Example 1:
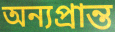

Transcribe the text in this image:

অন্যপ্রান্ত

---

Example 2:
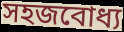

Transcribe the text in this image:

সহজবোধ্য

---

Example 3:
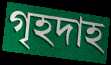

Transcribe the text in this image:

গৃহদাহ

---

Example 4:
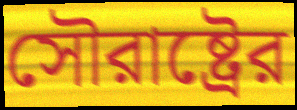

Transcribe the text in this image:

সৌরাষ্ট্রের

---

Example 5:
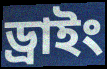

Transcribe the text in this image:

ড্রাইং